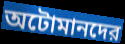
অটোমানদের